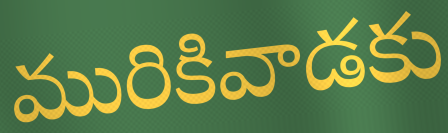
మురికివాడకు